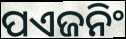
ପଏଜନିଂ